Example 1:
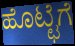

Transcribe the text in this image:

ಹೊಟ್ಟೆಗೆ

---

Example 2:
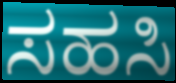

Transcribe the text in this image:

ಸಹಸಿ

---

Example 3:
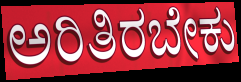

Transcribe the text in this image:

ಅರಿತಿರಬೇಕು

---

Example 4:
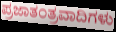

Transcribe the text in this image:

ಪ್ರಜಾತಂತ್ರವಾದಿಗಳು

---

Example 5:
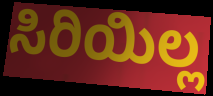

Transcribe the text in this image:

ಸಿರಿಯಿಲ್ಲ